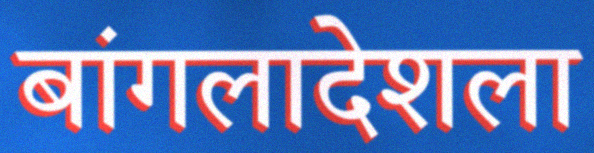
बांगलादेशला